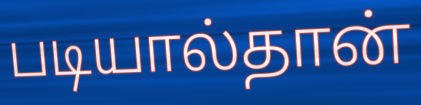
படியால்தான்